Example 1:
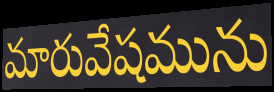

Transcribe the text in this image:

మారువేషమును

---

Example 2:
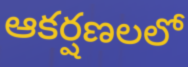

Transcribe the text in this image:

ఆకర్షణలలో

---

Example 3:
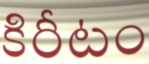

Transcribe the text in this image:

కిరీటం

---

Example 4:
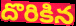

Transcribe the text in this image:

దొరికిన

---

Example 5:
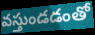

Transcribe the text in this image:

వస్తుండడంతో